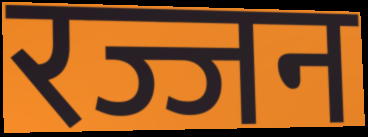
रज्जन